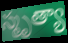
స్మృత్యా